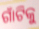
ଗାଁଟିକୁ